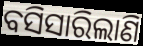
ବସିସାରିଲାଣି